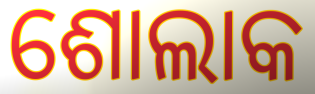
ଶୋଲାକ